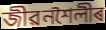
জীৱনশৈলীৰ